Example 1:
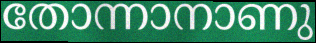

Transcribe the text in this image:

തോന്നാനാണു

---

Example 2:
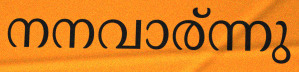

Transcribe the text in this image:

നനവാര്ന്നു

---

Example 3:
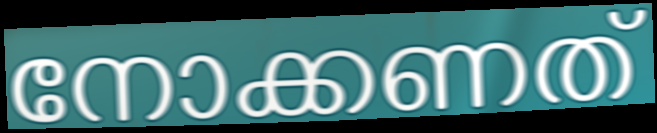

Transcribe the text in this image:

നോക്കണത്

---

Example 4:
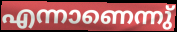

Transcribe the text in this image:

എന്നാണെന്നു്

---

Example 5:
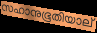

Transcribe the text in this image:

സഹാനുഭൂതിയാല്